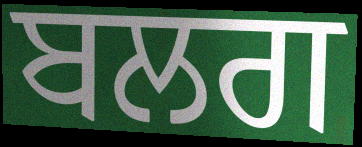
ਬਲਗ